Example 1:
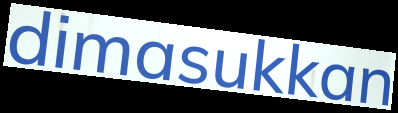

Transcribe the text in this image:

dimasukkan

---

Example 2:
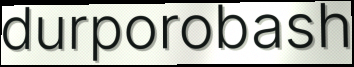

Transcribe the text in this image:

durporobash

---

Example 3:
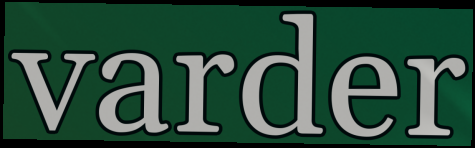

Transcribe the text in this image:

varder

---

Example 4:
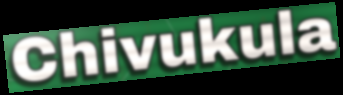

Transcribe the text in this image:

Chivukula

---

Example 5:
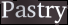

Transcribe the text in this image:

Pastry